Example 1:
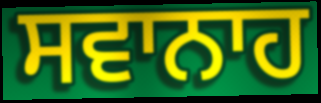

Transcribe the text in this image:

ਸਵਾਨਾਹ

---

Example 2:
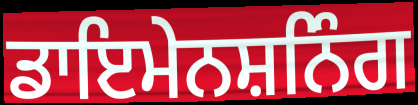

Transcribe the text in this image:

ਡਾਇਮੇਨਸ਼ਨਿੰਗ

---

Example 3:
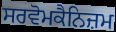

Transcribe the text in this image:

ਸਰਵੋਮਕੈਨਿਜ਼ਮ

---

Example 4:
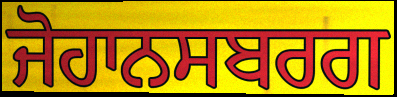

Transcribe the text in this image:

ਜੋਹਾਨਸਬਰਗ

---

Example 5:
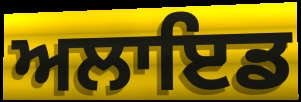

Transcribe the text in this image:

ਅਲਾਇਡ